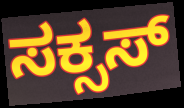
ಸಕ್ಸಸ್